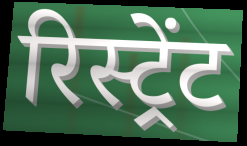
रिस्ट्रेंट